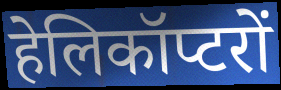
हेलिकॉप्टरों